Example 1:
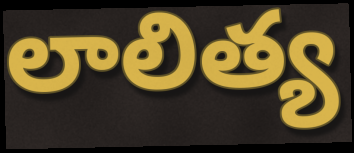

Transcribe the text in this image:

లాలిత్య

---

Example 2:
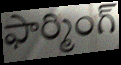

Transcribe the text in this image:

ఫార్మింగ్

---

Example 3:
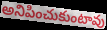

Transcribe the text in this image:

అనిపించుకుంటావు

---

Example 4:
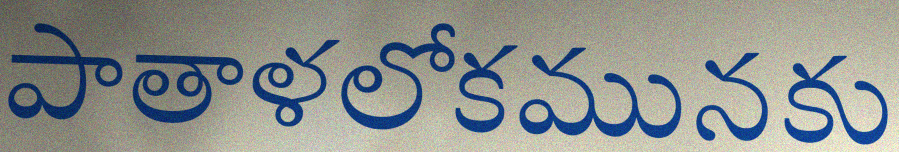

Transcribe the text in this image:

పాతాళలోకమునకు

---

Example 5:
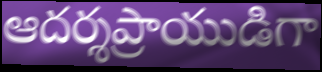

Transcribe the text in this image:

ఆదర్శప్రాయుడిగా